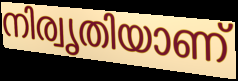
നിര്വൃതിയാണ്